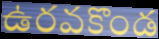
ఉరవకొండ